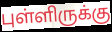
புள்ளிருக்கு